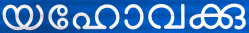
യഹോവക്കു